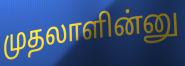
முதலாளின்னு